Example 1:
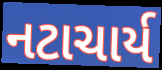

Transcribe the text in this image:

નટાચાર્ય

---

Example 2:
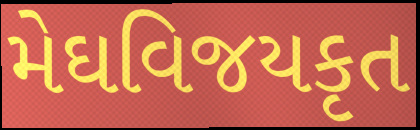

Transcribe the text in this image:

મેઘવિજયકૃત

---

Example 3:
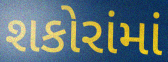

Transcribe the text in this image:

શકોરાંમાં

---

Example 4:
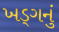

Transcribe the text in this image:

ખડ્ગનું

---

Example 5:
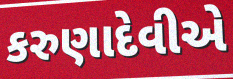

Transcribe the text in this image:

કરુણાદેવીએ